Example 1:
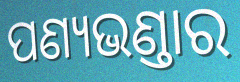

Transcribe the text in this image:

ପଣ୍ୟଭଣ୍ଡାର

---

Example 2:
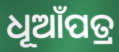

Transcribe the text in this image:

ଧୂଆଁପତ୍ର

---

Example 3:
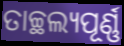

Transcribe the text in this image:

ତାଚ୍ଛଲ୍ୟପୂର୍ଣ୍ଣ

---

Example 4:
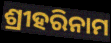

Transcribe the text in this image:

ଶ୍ରୀହରିନାମ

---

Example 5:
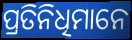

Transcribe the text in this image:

ପ୍ରତିନିଧିମାନେ